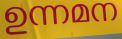
ഉന്നമന